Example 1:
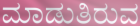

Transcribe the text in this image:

ಮಾಡುತಿರುವ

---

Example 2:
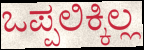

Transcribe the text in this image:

ಒಪ್ಪಲಿಕ್ಕಿಲ್ಲ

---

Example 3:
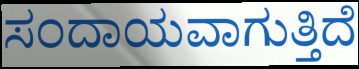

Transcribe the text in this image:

ಸಂದಾಯವಾಗುತ್ತಿದೆ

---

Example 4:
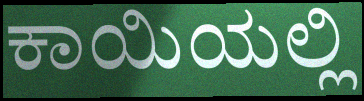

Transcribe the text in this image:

ಕಾಯಿಯಲ್ಲಿ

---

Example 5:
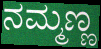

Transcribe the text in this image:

ನಮ್ಮಣ್ಣ